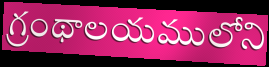
గ్రంథాలయములోని